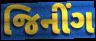
જિનીંગ